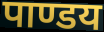
पाण्डय